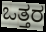
ಒತ್ತರ